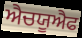
ਐਚਯੂਐਫ